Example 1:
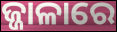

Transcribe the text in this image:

ଜ୍ଜାଳାରେ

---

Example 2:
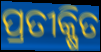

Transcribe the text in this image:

ପ୍ରତୀକ୍ଷିତ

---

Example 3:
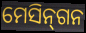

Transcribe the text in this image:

ମେସିନ୍‌ଗନ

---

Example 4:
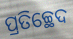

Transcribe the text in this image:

ପ୍ରତିଚ୍ଛେଦ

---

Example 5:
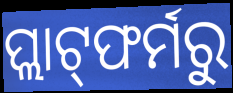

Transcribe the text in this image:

ପ୍ଲାଟ୍‌ଫର୍ମରୁ